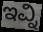
ಇವ್ನಿ